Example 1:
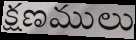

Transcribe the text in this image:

క్షణములు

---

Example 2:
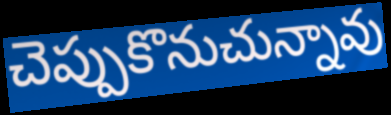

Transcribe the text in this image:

చెప్పుకొనుచున్నావు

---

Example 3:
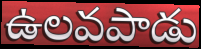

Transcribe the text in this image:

ఉలవపాడు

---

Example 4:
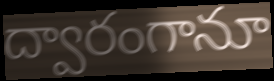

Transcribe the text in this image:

ద్వారంగానూ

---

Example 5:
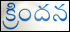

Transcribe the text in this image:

క్రిందన